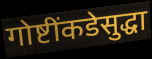
गोष्टींकडेसुद्धा